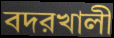
বদরখালী